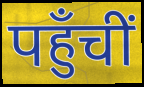
पहुँचीं